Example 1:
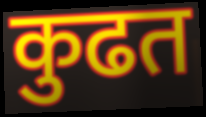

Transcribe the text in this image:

कुढत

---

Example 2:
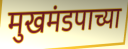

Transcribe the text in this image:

मुखमंडपाच्या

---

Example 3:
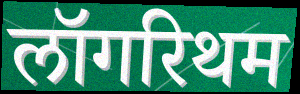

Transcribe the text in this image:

लॉगरिथम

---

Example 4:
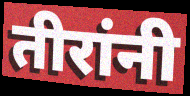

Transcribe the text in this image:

तीरांनी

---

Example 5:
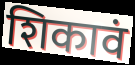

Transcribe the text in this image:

शिकावं